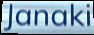
Janaki